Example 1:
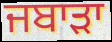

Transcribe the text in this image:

ਜਬਾੜਾ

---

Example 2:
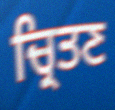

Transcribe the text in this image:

ਚ੍ਰਿਤਣ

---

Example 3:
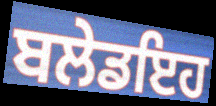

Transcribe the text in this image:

ਬਲੇਡਇਹ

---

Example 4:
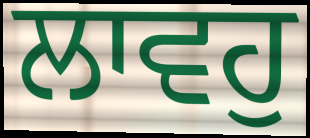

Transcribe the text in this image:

ਲਾਵਹੁ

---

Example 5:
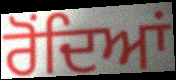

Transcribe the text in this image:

ਰੋਂਦਿਆਂ